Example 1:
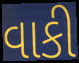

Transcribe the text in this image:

વાકી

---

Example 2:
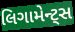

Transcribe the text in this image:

લિગામેન્ટ્સ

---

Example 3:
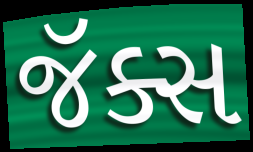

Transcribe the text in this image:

જૅક્સ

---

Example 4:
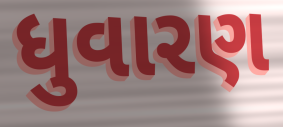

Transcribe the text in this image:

ધુવારણ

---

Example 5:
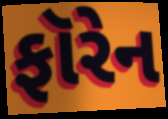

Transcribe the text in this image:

ફૉરેન